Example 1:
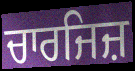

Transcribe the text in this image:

ਚਾਰਜਿਜ਼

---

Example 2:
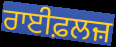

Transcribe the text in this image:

ਰਾਈਫ਼ਲਜ਼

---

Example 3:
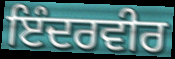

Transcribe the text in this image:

ਇੰਦਰਵੀਰ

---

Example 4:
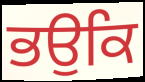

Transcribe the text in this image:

ਭਉਕਿ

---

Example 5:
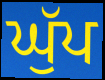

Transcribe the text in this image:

ਘੁੱਪ